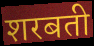
शरबती